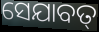
ସେଯାବତ୍